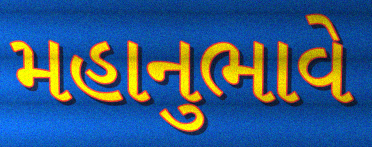
મહાનુભાવે